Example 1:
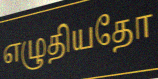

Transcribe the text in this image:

எழுதியதோ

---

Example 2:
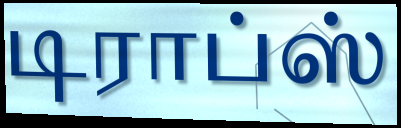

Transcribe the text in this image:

டிராப்ஸ்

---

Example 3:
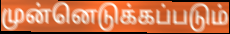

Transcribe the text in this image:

முன்னெடுக்கப்படும்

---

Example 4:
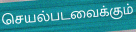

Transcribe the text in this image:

செயல்படவைக்கும்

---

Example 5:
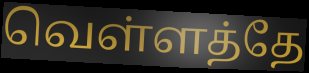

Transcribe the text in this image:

வெள்ளத்தே